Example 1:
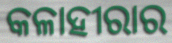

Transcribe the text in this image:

କଳାହୀରାର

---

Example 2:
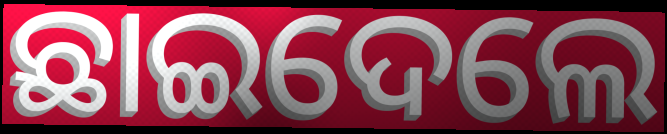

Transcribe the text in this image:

ଛାଇଦେଲେ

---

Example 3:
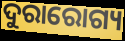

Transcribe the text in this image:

ଦୁରାରୋଗ୍ୟ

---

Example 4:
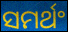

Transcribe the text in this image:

ସମର୍ଥଂ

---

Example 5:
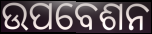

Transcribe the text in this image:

ଉପବେଶନ